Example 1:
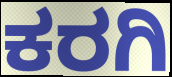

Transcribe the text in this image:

ಕರಗಿ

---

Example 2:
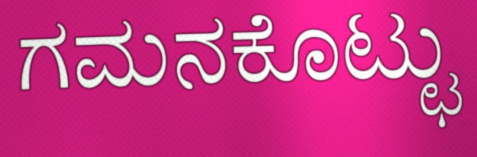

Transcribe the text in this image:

ಗಮನಕೊಟ್ಟು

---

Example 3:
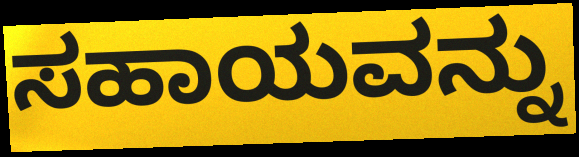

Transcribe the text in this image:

ಸಹಾಯವನ್ನು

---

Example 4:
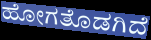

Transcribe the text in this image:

ಹೋಗತೊಡಗಿದೆ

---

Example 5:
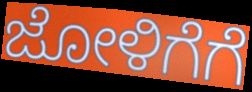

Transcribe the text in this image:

ಜೋಳಿಗೆಗೆ